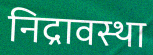
निद्रावस्था